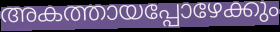
അകത്തായപ്പോഴേക്കും